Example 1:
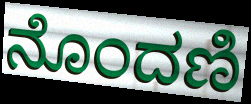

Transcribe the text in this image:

ನೊಂದಣಿ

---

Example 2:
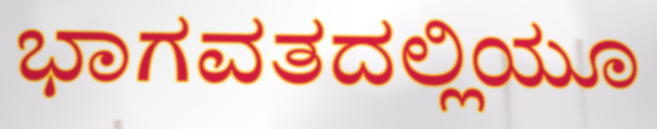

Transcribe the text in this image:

ಭಾಗವತದಲ್ಲಿಯೂ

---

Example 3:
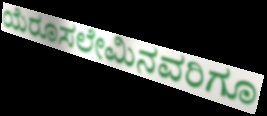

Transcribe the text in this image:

ಯೆರೂಸಲೇಮಿನವರಿಗೂ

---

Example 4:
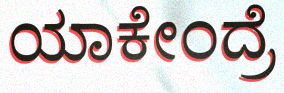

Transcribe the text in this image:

ಯಾಕೇಂದ್ರೆ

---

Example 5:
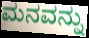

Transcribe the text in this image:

ಮನವನ್ನು